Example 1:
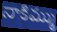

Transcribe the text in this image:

నాకిమ్ము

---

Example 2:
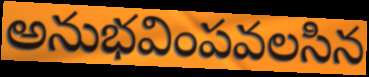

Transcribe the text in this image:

అనుభవింపవలసిన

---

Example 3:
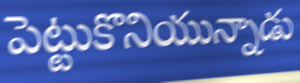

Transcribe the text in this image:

పెట్టుకొనియున్నాడు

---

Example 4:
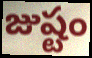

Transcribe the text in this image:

జుష్టం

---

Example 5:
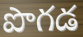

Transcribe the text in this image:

పొగడ